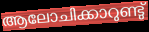
ആലോചിക്കാറുണ്ടു്